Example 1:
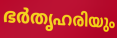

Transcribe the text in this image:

ഭർതൃഹരിയും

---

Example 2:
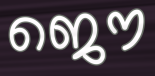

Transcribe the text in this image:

ജൌ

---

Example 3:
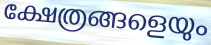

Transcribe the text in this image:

ക്ഷേത്രങ്ങളെയും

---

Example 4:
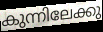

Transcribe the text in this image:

കുന്നിലേക്കു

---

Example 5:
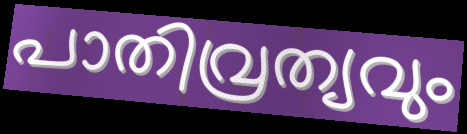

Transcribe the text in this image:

പാതിവ്രത്യവും